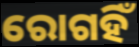
ରୋଗହିଁ